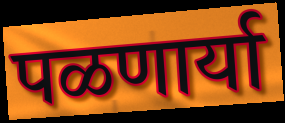
पळणार्या